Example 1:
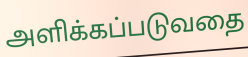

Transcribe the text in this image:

அளிக்கப்படுவதை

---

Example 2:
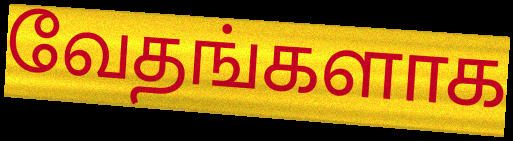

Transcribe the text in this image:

வேதங்களாக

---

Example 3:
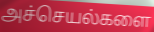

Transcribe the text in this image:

அச்செயல்களை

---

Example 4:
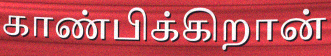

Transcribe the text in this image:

காண்பிக்கிறான்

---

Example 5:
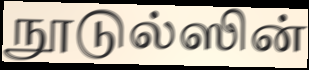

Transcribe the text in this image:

நூடுல்ஸின்